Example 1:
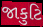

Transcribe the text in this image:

જાકુટિ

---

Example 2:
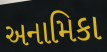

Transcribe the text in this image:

અનામિકા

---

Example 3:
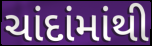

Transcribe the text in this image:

ચાંદાંમાંથી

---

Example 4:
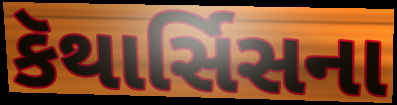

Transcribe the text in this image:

કૅથાર્સિસના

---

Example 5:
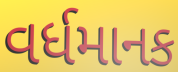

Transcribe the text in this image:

વર્ધમાનક